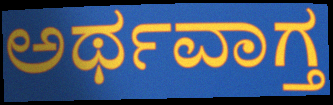
ಅರ್ಥವಾಗ್ತ